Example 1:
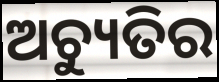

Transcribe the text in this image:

ଅଚ୍ୟୁତିର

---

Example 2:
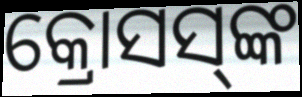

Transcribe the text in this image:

କ୍ରୋସସ୍‌ଙ୍କ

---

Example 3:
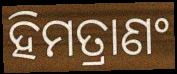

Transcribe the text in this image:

ହିମତ୍ରାଣଂ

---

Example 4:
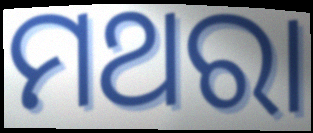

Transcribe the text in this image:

ମଥରା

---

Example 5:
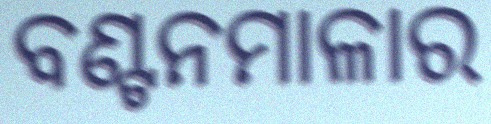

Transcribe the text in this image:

ବଣ୍ଟନମାଳାର